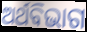
ଅର୍ଥବିଭାଗ